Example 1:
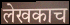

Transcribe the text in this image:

लेखकाच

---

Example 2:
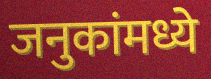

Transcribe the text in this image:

जनुकांमध्ये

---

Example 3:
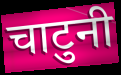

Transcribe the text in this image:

चाटुनी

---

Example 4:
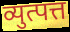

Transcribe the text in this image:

व्युत्पत्त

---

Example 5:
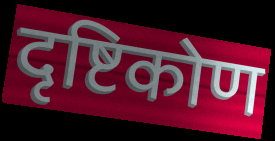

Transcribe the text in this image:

दृष्टिकोण